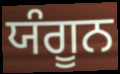
ਯੰਗੂਨ